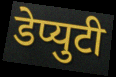
डेप्युटी